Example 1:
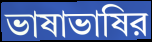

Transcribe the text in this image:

ভাষাভাষির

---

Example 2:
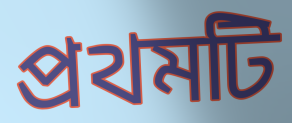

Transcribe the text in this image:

প্রথমটি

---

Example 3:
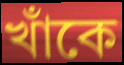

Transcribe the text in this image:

খাঁকে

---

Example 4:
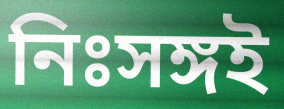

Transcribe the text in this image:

নিঃসঙ্গই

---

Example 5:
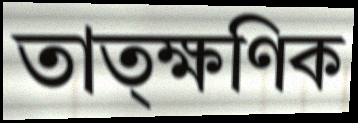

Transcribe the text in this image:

তাত্ক্ষণিক